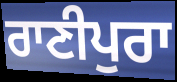
ਰਾਣੀਪੁਰਾ